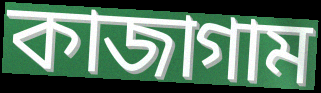
কাজাগাম